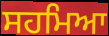
ਸਹਮਿਆ